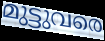
മുട്ടുവരെ